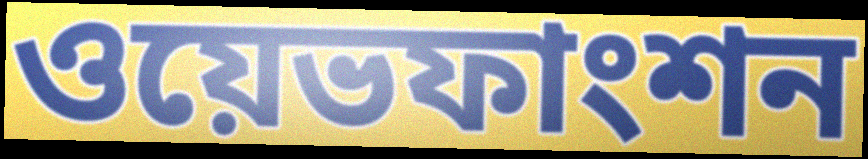
ওয়েভফাংশন